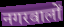
नगरवालों